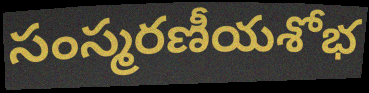
సంస్మరణీయశోభ